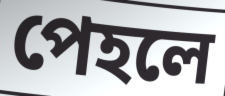
পেহলে